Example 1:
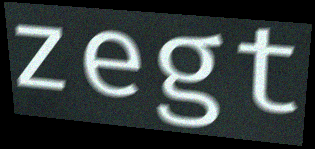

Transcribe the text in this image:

zegt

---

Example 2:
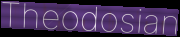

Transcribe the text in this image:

Theodosian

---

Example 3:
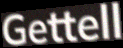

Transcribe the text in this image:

Gettell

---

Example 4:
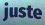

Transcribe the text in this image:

juste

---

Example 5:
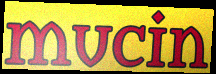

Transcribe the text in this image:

mucin